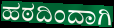
ಹಠದಿಂದಾಗಿ